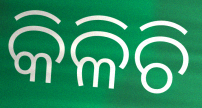
କିଳିଚି